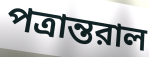
পত্রান্তরাল